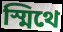
স্মিথে